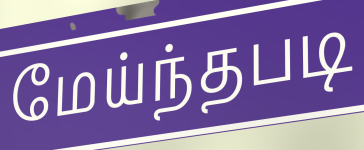
மேய்ந்தபடி